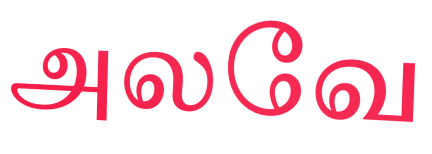
அலவே